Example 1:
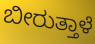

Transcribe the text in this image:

ಬೀರುತ್ತಾಳೆ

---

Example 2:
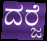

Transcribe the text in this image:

ದರ‍್ಜೆ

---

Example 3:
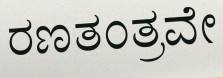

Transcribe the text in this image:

ರಣತಂತ್ರವೇ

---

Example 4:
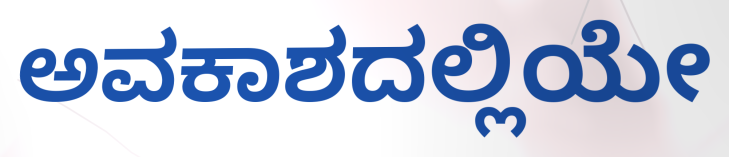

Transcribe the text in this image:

ಅವಕಾಶದಲ್ಲಿಯೇ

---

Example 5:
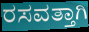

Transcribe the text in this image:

ರಸವತ್ತಾಗಿ